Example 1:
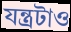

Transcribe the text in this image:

যন্ত্রটাও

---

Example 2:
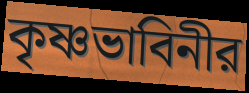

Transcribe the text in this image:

কৃষ্ণভাবিনীর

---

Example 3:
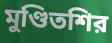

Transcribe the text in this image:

মুণ্ডিতশির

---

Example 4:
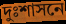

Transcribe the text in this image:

দুঃশাসনে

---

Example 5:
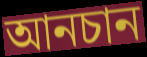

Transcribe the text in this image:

আনচান